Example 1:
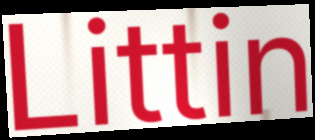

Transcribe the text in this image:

Littin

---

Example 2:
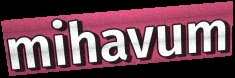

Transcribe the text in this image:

mihavum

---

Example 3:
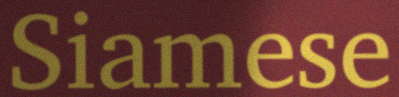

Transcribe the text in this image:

Siamese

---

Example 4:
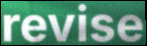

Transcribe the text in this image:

revise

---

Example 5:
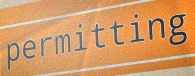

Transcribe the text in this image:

permitting